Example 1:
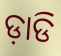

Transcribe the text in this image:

ଡ଼ାଡି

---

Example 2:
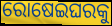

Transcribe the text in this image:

ରୋଷେଇଘରକୁ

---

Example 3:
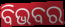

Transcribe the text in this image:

ବିଭବର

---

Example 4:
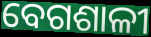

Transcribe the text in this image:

ବେଗଶାଳୀ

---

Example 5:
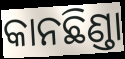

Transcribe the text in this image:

କାନଛିଣ୍ଡା